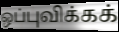
ஒப்புவிக்கக்